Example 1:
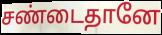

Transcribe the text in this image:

சண்டைதானே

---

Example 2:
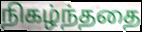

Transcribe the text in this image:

நிகழ்ந்ததை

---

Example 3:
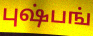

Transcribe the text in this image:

புஷ்பங்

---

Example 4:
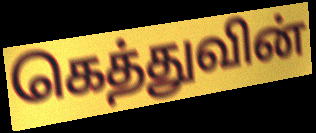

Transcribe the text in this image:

கெத்துவின்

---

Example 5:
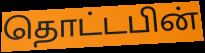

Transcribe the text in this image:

தொட்டபின்